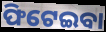
ଫିଟେଇବା